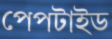
পেপটাইড